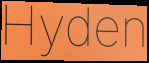
Hyden